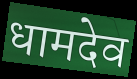
धामदेव